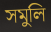
সমুলি